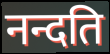
नन्दति